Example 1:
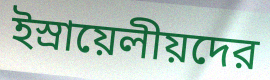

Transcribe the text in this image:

ইস্রায়েলীয়দের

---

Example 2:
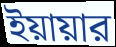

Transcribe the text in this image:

ইয়ায়ার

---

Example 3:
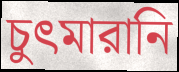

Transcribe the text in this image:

চুৎমারানি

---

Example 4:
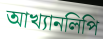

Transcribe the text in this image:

আখ্যানলিপি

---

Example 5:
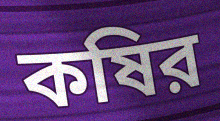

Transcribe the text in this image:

কষির